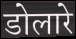
डोलारे